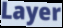
Layer